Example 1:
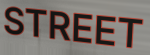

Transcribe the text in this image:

STREET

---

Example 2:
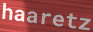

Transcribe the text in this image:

haaretz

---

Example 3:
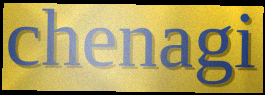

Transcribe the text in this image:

chenagi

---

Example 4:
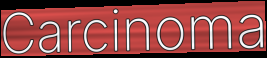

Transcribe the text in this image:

Carcinoma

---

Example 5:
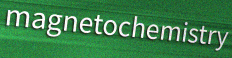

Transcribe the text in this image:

magnetochemistry